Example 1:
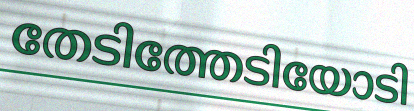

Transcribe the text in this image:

തേടിത്തേടിയോടി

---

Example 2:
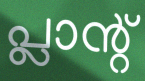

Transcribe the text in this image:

പ്ലാന്റ്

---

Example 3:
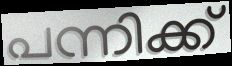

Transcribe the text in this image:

പന്നിക്ക്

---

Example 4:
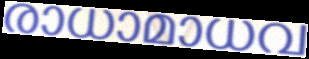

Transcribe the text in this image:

രാധാമാധവ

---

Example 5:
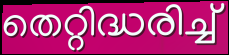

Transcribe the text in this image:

തെറ്റിദ്ധരിച്ച്